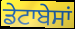
ਡੇਟਾਬੇਸਾਂ